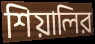
শিয়ালির